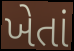
ખેતાં